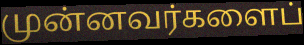
முன்னவர்களைப்